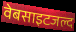
वेबसाइटजल्द